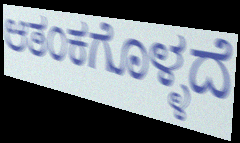
ಆತಂಕಗೊಳ್ಳದೆ